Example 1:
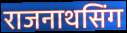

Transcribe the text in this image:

राजनाथसिंग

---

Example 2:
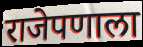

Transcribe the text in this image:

राजेपणाला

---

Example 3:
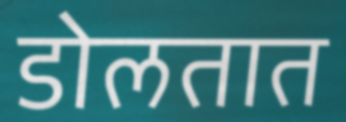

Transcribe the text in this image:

डोलतात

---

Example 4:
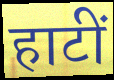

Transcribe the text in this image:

हाटीं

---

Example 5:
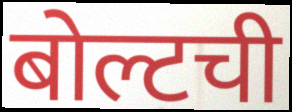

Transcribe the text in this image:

बोल्टची